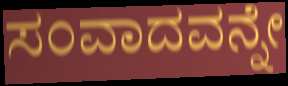
ಸಂವಾದವನ್ನೇ